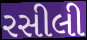
રસીલી